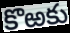
కొఱకు